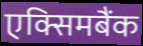
एक्सिमबैंक